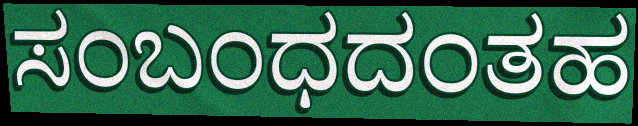
ಸಂಬಂಧದಂತಹ